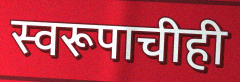
स्वरूपाचीही